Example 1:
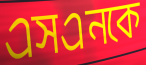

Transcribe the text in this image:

এসএনকে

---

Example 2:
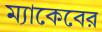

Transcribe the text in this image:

ম্যাকেবের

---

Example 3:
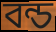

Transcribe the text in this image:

বন্ড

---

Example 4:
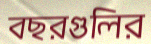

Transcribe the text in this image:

বছরগুলির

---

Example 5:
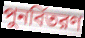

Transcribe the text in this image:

পুনর্বিতরণ